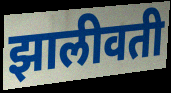
झालीवती